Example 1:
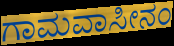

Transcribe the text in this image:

ಗಾಮವಾಸೀನಂ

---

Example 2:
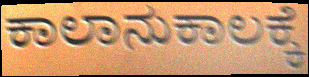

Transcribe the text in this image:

ಕಾಲಾನುಕಾಲಕ್ಕೆ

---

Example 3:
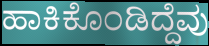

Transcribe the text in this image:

ಹಾಕಿಕೊಂಡಿದ್ದೆವು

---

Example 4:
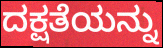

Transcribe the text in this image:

ದಕ್ಷತೆಯನ್ನು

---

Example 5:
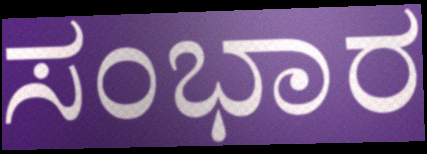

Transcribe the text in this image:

ಸಂಭಾರ